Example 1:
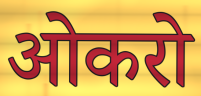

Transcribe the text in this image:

ओकरो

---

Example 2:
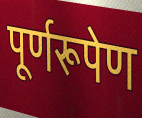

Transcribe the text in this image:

पूर्णरूपेण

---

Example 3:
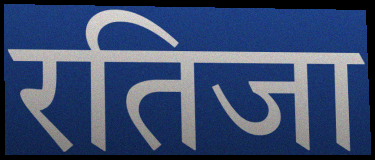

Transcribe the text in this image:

रतिजा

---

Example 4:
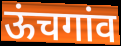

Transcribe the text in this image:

ऊंचगांव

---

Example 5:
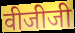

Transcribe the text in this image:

वीजीजी